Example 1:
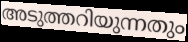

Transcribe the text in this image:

അടുത്തറിയുന്നതും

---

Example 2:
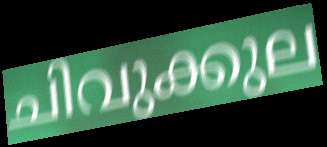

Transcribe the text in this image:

ചിവുക്കുല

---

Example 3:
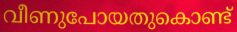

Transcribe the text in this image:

വീണുപോയതുകൊണ്ട്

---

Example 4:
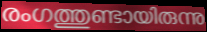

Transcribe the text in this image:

രംഗത്തുണ്ടായിരുന്നു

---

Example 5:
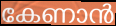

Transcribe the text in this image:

കേണാൻ